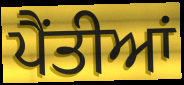
ਪੈਂਤੀਆਂ